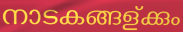
നാടകങ്ങള്ക്കും